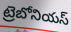
ట్రెబోనియస్